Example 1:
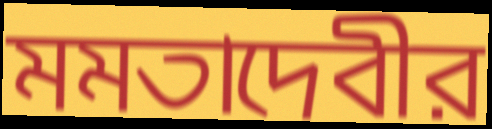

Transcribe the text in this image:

মমতাদেবীর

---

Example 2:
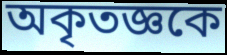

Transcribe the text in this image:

অকৃতজ্ঞকে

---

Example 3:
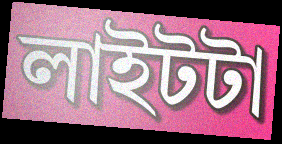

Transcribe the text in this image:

লাইটটা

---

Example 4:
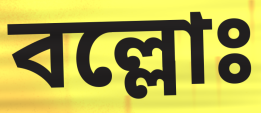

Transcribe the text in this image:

বল্লোঃ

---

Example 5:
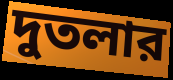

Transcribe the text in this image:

দুতলার